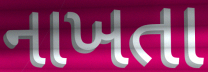
નાખતા